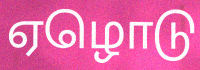
ஏழொடு